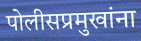
पोलीसप्रमुखांना